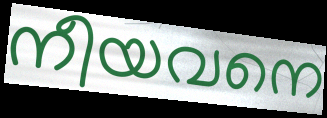
നീയവനെ